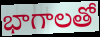
భాగాలతో